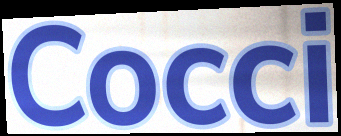
Cocci